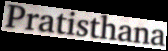
Pratisthana